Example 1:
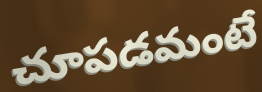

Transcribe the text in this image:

చూపడమంటే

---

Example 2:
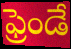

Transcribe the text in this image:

ఫ్రెండే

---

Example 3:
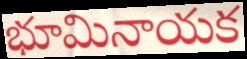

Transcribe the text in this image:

భూమినాయక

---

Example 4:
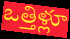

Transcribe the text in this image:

ఒత్తిళ్లూ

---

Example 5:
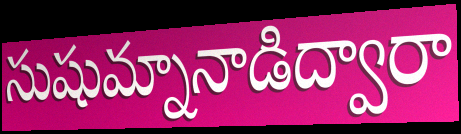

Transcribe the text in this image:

సుషుమ్నానాడిద్వారా